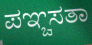
ಪಞ್ಚಸತಾ